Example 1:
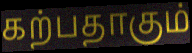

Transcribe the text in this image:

கற்பதாகும்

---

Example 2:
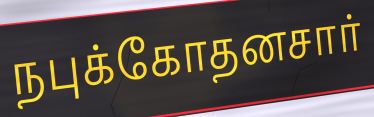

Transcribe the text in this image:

நபுக்கோதனசார்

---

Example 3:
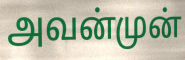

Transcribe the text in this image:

அவன்முன்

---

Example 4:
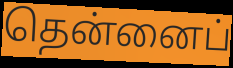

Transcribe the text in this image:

தென்னைப்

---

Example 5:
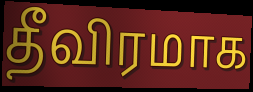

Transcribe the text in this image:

தீவிரமாக